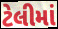
ટેલીમાં